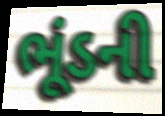
ભૂંડની